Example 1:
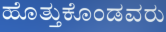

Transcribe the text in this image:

ಹೊತ್ತುಕೊಂಡವರು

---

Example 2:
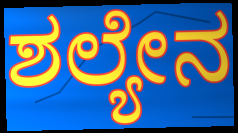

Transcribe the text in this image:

ಶಲ್ಯೇನ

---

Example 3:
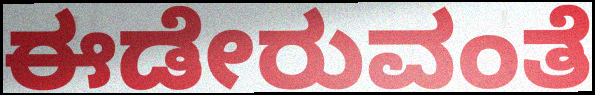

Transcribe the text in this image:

ಈಡೇರುವಂತೆ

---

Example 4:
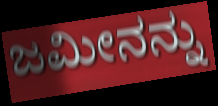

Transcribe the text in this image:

ಜಮೀನನ್ನು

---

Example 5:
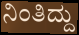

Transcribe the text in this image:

ನಿಂತಿದ್ದು